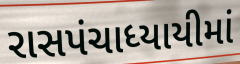
રાસપંચાધ્યાયીમાં